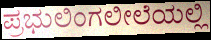
ಪ್ರಭುಲಿಂಗಲೀಲೆಯಲ್ಲಿ